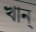
খান্